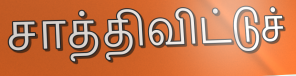
சாத்திவிட்டுச்